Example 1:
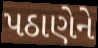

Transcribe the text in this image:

પઠાણેને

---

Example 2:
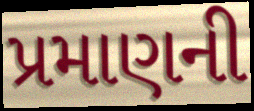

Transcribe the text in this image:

પ્રમાણની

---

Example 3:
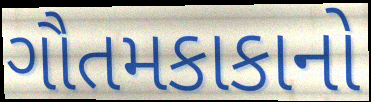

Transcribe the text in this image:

ગૌતમકાકાનો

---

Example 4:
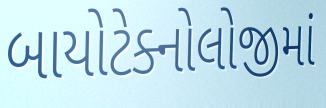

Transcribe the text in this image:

બાયોટેક્નોલોજીમાં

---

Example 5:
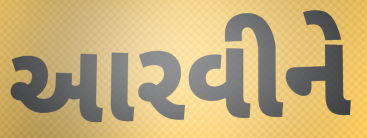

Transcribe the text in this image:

આરવીને